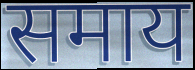
समाय